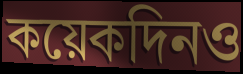
কয়েকদিনও